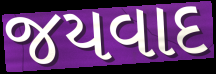
જયવાદ